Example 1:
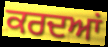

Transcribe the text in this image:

ਕਰਦਆਂ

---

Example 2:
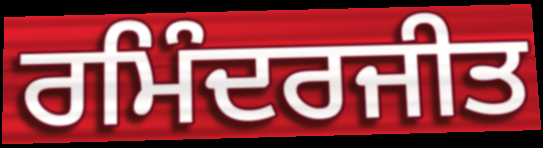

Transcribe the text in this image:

ਰਮਿੰਦਰਜੀਤ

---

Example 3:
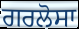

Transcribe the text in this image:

ਗਰਲੋਸਾ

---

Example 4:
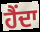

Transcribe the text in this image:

ਹੈਂਦਾ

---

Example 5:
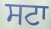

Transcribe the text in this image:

ਸਟਾ